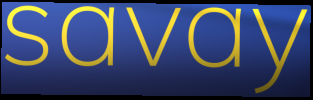
savay